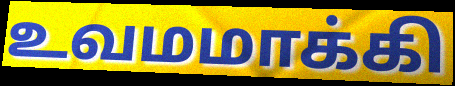
உவமமாக்கி